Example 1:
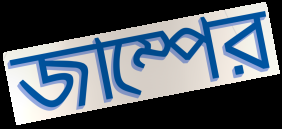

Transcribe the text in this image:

জাম্পের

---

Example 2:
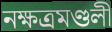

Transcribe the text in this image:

নক্ষত্রমণ্ডলী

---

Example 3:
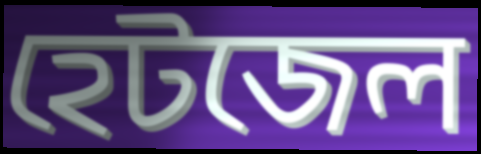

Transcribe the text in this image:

হেটজেল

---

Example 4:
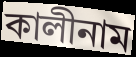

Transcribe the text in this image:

কালীনাম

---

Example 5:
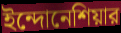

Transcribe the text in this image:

ইন্দোনেশিয়ার